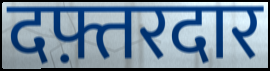
दफ़्तरदार